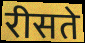
रीसते